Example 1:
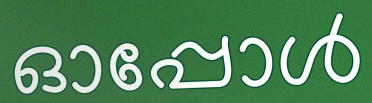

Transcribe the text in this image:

ഓപ്പോൾ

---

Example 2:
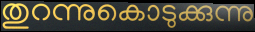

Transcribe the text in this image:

തുറന്നുകൊടുക്കുന്നു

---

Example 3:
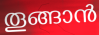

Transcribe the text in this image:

തൂങ്ങാൻ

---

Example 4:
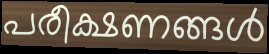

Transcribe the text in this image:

പരീക്ഷണങ്ങൾ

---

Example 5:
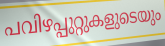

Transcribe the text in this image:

പവിഴപ്പുറ്റുകളുടെയും